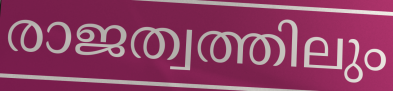
രാജത്വത്തിലും